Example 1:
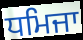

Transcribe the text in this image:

ਧਮਿਜਾ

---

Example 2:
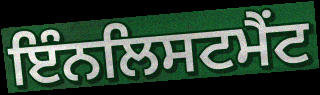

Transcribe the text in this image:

ਇੰਨਲਿਸਟਮੈਂਟ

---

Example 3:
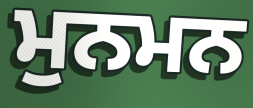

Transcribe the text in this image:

ਮੁਨਮਨ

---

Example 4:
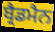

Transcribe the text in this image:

ਬ੍ਰੈਡਮੈਨ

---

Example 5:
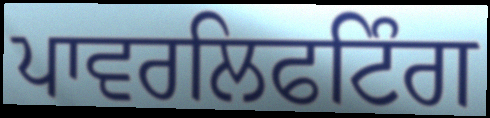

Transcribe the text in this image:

ਪਾਵਰਲਿਫਟਿੰਗ